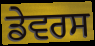
ਡੇਵਰਸ